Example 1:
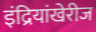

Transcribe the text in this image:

इंद्रियांखेरीज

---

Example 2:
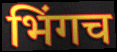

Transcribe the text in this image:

भिंगच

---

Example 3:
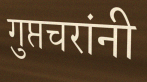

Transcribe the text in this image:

गुप्तचरांनी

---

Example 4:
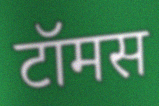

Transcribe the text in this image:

टॉमस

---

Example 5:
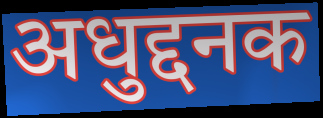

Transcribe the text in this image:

अधुद्दनक